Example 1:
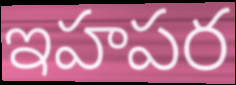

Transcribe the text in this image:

ఇహపర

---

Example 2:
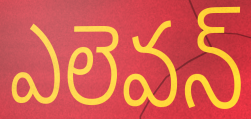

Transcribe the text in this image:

ఎలెవన్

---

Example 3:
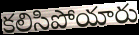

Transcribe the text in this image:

కలిసిపోయారు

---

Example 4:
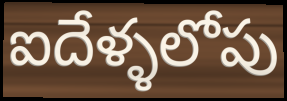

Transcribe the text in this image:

ఐదేళ్ళలోపు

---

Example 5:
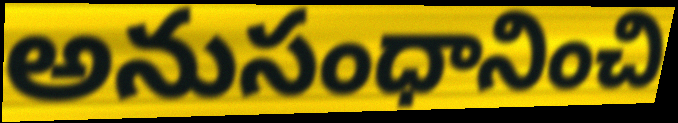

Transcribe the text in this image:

అనుసంధానించి